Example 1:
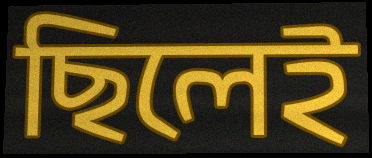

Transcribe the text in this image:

ছিলেই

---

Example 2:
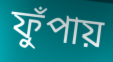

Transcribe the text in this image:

ফুঁপায়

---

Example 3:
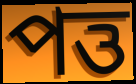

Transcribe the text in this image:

পত্ত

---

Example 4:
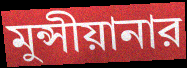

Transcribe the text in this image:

মুন্সীয়ানার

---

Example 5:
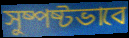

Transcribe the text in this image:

সুষ্পষ্টভাবে